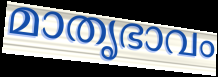
മാതൃഭാവം